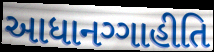
આધાનગ્ગાહીતિ